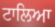
ਟਾਲਿਆ